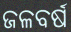
ଜଳବର୍ଷ